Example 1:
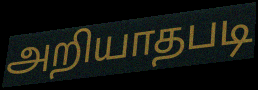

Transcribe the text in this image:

அறியாதபடி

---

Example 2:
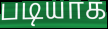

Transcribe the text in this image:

படியாக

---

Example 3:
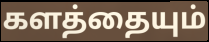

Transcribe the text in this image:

களத்தையும்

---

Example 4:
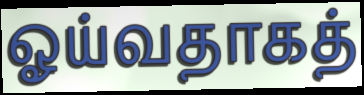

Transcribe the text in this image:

ஓய்வதாகத்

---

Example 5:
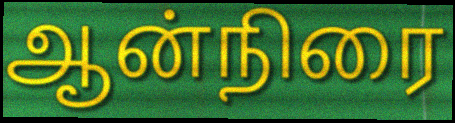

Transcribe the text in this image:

ஆன்நிரை